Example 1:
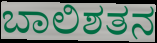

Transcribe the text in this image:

ಬಾಲಿಶತನ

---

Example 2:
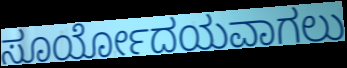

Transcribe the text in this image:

ಸೂರ್ಯೋದಯವಾಗಲು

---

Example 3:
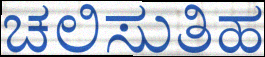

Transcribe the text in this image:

ಚಲಿಸುತಿಹ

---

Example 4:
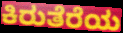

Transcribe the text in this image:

ಕಿರುತೆರೆಯ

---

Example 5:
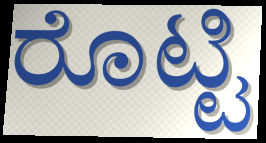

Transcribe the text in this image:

ರೊಟ್ಟಿ